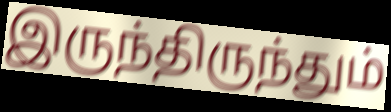
இருந்திருந்தும்